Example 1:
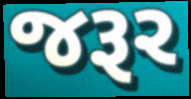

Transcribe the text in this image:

જરૂર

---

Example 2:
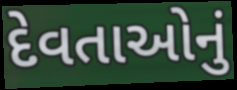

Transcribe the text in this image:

દેવતાઓનું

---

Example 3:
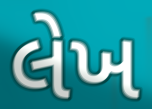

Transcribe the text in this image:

લેખ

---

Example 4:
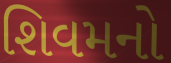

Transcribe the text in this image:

શિવમનો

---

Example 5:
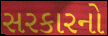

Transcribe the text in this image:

સરકારનો